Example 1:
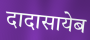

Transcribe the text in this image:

दादासायेब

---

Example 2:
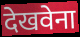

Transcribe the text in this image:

देखवेना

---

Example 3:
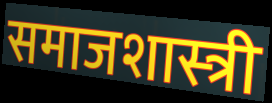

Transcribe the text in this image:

समाजशास्त्री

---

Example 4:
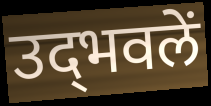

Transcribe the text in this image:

उद्‍भवलें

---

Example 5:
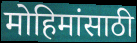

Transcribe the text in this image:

मोहिमांसाठी